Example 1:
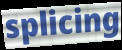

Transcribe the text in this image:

splicing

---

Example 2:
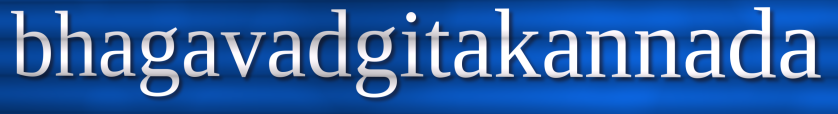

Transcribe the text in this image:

bhagavadgitakannada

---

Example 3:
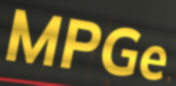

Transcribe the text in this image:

MPGe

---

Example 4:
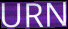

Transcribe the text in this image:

URN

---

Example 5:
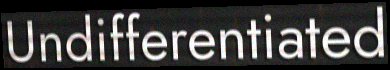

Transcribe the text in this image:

Undifferentiated